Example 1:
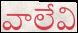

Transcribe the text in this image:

వాలేవి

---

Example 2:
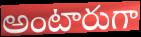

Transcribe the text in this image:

అంటారుగా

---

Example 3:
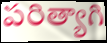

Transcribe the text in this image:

పరిత్యాగి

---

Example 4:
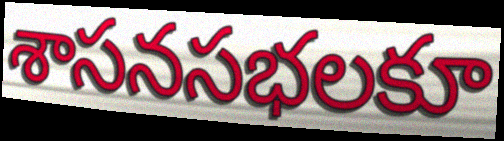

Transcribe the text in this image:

శాసనసభలకూ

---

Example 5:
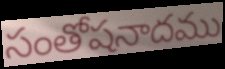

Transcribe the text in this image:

సంతోషనాదము